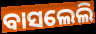
ବାସଲେଲି